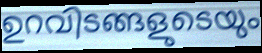
ഉറവിടങ്ങളുടെയും